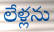
లేళ్లను